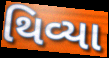
થિવ્યા